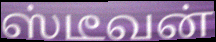
ஸ்டீவன்